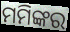
ମମିଙ୍କର